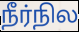
நீர்நில